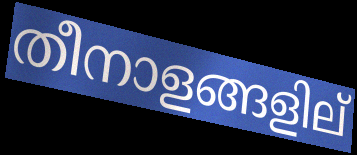
തീനാളങ്ങളില്